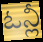
ఓన్లీ